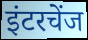
इंटरचेंज